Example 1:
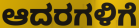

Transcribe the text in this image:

ಆದರಗಳಿಗೆ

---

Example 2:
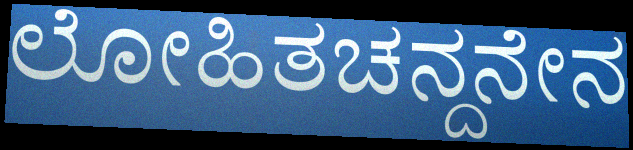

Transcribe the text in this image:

ಲೋಹಿತಚನ್ದನೇನ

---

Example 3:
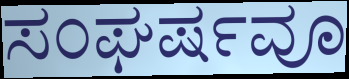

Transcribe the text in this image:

ಸಂಘರ್ಷವೂ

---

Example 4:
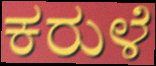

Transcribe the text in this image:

ಕರುಳೆ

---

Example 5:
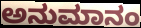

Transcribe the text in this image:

ಅನುಮಾನಂ